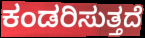
ಕಂಡರಿಸುತ್ತದೆ